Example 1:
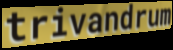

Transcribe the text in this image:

trivandrum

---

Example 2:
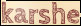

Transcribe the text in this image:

karshe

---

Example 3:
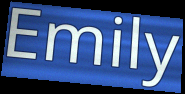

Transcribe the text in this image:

Emily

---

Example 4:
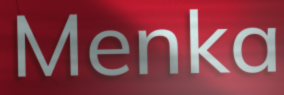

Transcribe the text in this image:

Menka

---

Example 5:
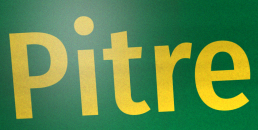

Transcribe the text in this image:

Pitre